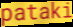
pataki